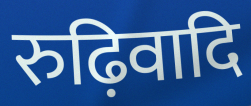
रुढ़िवादि